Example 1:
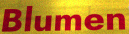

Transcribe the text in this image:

Blumen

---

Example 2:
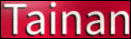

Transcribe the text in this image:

Tainan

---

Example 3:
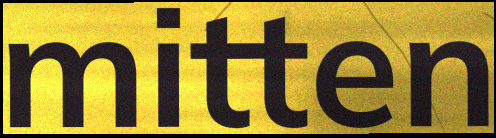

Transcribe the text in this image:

mitten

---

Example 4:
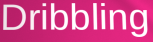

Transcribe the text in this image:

Dribbling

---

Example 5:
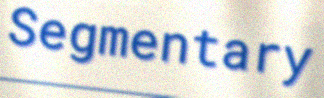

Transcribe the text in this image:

Segmentary